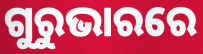
ଗୁରୁଭାରରେ